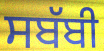
ਸਬੱਬੀ